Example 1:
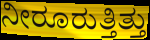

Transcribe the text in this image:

ನೀರೂರುತ್ತಿತ್ತು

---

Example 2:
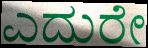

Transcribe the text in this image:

ಎದುರೇ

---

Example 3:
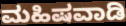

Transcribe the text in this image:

ಮಹಿಷವಾಡಿ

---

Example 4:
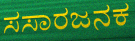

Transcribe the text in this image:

ಸಸಾರಜನಕ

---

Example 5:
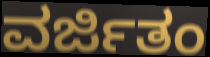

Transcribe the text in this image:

ವರ್ಜಿತಂ